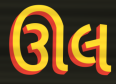
ઊલ